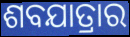
ଶବଯାତ୍ରାର